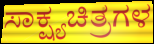
ಸಾಕ್ಷ್ಯಚಿತ್ರಗಳ